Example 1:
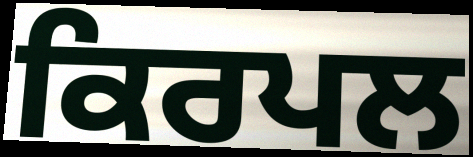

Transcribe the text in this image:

ਕਿਰਪਲ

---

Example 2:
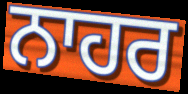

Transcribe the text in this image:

ਨਾਹਰ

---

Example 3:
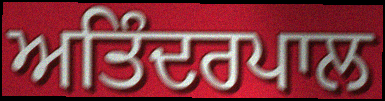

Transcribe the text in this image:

ਅਤਿੰਦਰਪਾਲ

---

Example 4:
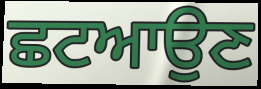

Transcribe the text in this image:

ਛਟਆਉਣ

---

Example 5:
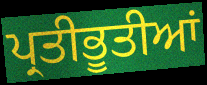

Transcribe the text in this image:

ਪ੍ਰਤੀਭੂਤੀਆਂ